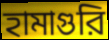
হামাগুরি